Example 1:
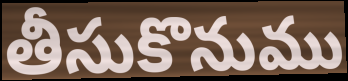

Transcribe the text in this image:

తీసుకొనుము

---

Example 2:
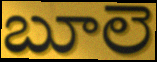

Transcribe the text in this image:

బూలె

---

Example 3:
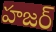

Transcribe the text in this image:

హజర్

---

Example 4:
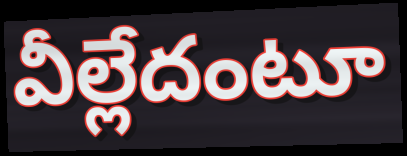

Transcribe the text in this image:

వీల్లేదంటూ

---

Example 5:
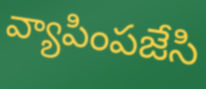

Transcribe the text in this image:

వ్యాపింపజేసి